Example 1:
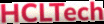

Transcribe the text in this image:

HCLTech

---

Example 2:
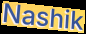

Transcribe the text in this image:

Nashik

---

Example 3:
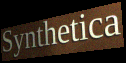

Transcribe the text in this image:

Synthetica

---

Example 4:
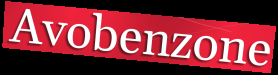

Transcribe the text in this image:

Avobenzone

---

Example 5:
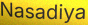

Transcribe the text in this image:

Nasadiya